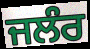
ਜਲੰਰ